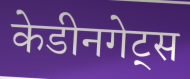
केडीनगेट्स